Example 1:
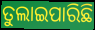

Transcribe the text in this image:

ତୁଲାଇପାରିଛି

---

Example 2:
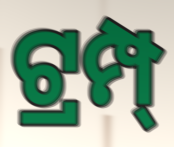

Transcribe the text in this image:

ଟ୍ରମ୍ପ୍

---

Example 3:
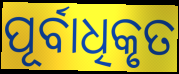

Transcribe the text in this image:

ପୂର୍ବାଧିକୃତ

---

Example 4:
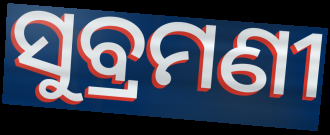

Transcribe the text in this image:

ସୁବ୍ରମଣୀ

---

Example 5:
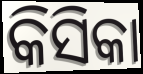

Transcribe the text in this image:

କିସିକା